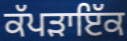
ਕੱਪੜਾਇੱਕ